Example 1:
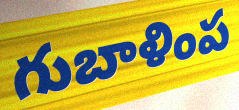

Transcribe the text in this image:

గుబాళింప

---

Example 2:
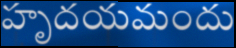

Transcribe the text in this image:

హృదయమందు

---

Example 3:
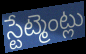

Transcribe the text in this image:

స్టేట్మెంట్లు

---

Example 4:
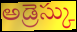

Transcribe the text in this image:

అడ్రెస్కు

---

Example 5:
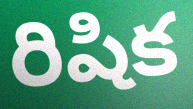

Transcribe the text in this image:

రిషిక